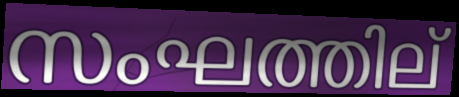
സംഘത്തില്